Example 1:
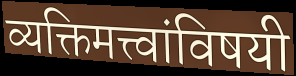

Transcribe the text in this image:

व्यक्तिमत्त्वांविषयी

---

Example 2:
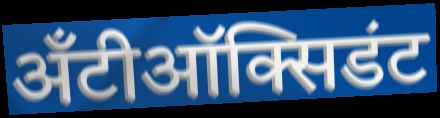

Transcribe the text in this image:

अँटीऑक्सिडंट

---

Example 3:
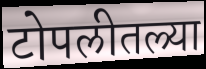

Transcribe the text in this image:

टोपलीतल्या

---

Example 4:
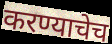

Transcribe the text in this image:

करण्याचेच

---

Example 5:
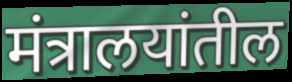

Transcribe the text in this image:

मंत्रालयांतील